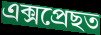
এক্সপ্ৰেছত